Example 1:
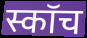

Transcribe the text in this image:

स्कॉच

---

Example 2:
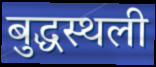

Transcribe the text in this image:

बुद्धस्थली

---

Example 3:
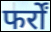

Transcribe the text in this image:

फर्रों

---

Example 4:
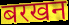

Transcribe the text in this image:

बरखन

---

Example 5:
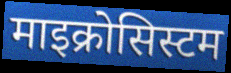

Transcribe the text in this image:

माइक्रोसिस्टम